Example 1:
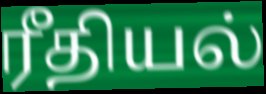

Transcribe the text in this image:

ரீதியல்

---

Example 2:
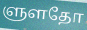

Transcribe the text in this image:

ளுளதோ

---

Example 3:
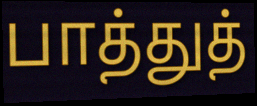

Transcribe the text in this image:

பாத்துத்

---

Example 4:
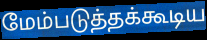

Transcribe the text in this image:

மேம்படுத்தக்கூடிய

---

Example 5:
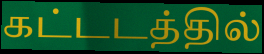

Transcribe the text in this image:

கட்டடத்தில்